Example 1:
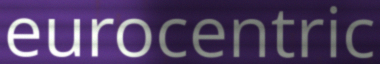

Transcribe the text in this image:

eurocentric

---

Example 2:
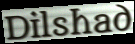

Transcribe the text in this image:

Dilshad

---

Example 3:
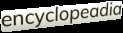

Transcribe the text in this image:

encyclopeadia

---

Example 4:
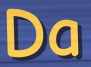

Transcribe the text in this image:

Da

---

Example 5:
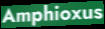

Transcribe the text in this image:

Amphioxus